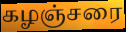
கழஞ்சரை